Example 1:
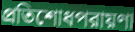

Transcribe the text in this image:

প্রতিশোধপরায়ণা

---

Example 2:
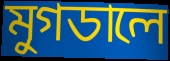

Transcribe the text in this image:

মুগডালে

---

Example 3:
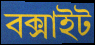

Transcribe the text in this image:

বক্সাইট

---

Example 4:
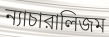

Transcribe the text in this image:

ন্যাচারালিজম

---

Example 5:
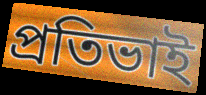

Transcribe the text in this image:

প্রতিভাই